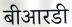
बीआरडी